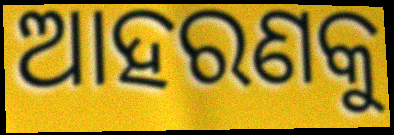
ଆହରଣକୁ